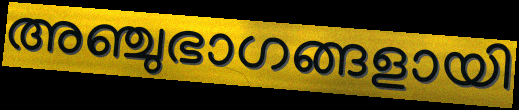
അഞ്ചുഭാഗങ്ങളായി